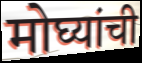
मोघ्यांची